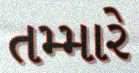
તમ્મારે